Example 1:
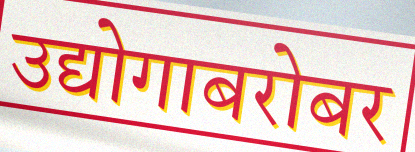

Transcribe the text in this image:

उद्योगाबरोबर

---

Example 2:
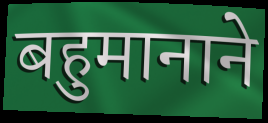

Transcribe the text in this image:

बहुमानाने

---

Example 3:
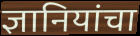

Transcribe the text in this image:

ज्ञानियांचा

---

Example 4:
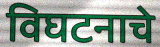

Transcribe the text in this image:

विघटनाचे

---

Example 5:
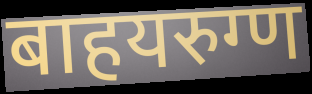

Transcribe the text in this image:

बाहयरुग्ण